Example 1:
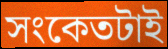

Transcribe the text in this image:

সংকেতটাই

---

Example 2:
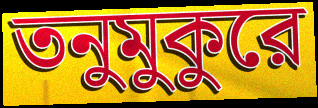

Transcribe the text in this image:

তনুমুকুরে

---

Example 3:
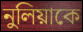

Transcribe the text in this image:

নুলিয়াকে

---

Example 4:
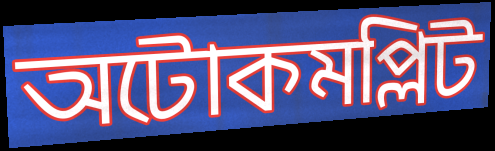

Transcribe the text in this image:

অটোকমপ্লিট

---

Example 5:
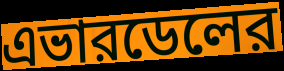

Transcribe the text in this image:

এভারডেলের